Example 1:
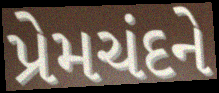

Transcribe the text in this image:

પ્રેમચંદને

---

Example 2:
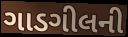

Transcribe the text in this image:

ગાડગીલની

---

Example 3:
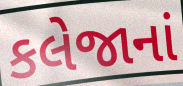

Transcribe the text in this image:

કલેજાનાં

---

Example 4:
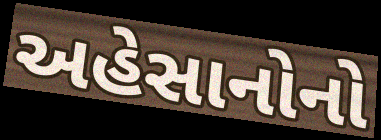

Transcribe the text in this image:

અહેસાનોનો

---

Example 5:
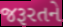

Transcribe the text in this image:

જરૂરતને